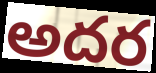
అదర